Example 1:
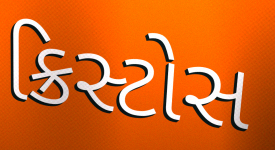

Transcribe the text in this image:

ક્રિસ્ટોસ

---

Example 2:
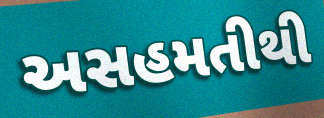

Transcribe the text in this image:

અસહમતીથી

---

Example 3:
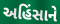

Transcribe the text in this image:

અહિંસાને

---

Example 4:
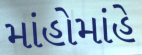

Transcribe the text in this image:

માંહોમાંહે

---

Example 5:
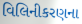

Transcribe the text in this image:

વિલિનીકરણના